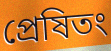
প্রেষিতং